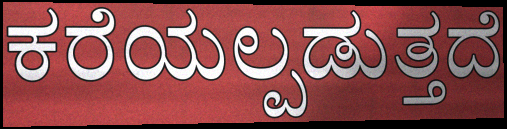
ಕರೆಯಲ್ಪಡುತ್ತದೆ